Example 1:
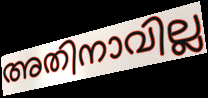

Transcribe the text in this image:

അതിനാവില്ല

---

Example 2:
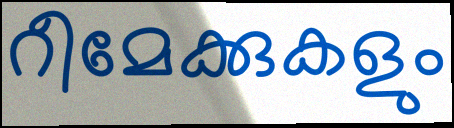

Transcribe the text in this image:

റീമേക്കുകളും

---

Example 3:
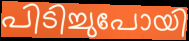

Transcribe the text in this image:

പിടിച്ചുപോയി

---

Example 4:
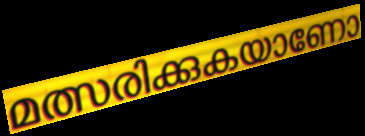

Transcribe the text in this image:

മത്സരിക്കുകയാണോ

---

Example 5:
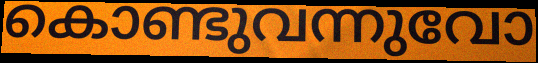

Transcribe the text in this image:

കൊണ്ടുവന്നുവോ